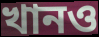
খানও